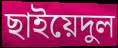
ছাইয়েদুল